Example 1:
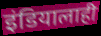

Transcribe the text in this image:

इंडियालाही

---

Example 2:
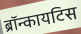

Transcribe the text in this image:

ब्रॉन्कायटिस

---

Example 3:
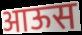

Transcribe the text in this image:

आऊस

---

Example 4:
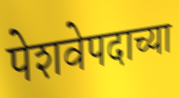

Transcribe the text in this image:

पेशवेपदाच्या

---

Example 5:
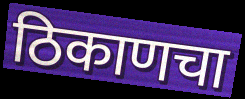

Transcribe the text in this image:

ठिकाणचा